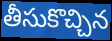
తీసుకొచ్చిన